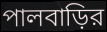
পালবাড়ির